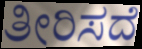
ತೀರಿಸದೆ